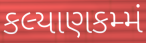
કલ્યાણકમ્મં